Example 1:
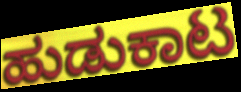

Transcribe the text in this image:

ಹುಡುಕಾಟ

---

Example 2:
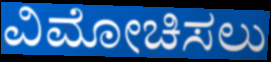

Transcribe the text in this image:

ವಿಮೋಚಿಸಲು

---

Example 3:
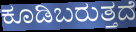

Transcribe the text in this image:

ಕೂಡಿಬರುತ್ತದೆ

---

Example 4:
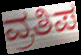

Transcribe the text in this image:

ವ್ರತಿಪ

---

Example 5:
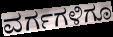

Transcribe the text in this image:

ವರ್ಗಗಳಿಗೂ